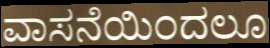
ವಾಸನೆಯಿಂದಲೂ